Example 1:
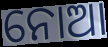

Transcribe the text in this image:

ନୋଆ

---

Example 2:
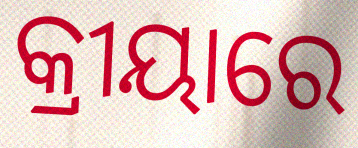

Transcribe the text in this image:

କ୍ରୀୟାରେ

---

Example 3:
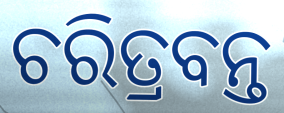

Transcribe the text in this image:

ଚରିତ୍ରବନ୍ତ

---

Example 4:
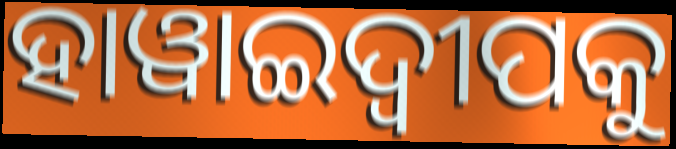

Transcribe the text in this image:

ହାୱାଇଦ୍ଵୀପକୁ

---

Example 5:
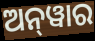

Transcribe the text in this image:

ଅନ୍‌ୱାର